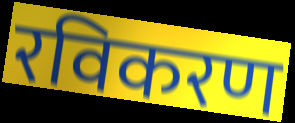
रविकरण